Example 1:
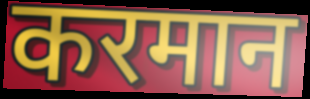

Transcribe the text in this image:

करमान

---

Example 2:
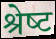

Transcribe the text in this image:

श्रेष्‍ट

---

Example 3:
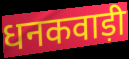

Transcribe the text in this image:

धनकवाड़ी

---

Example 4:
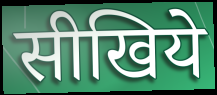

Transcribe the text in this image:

सीखिये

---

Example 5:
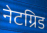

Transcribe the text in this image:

नेटग्रिड